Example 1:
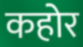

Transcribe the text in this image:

कहोर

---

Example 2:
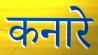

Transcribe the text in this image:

कनारे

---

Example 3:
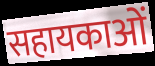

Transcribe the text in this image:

सहायकाओं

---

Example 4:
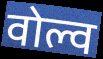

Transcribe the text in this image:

वोल्व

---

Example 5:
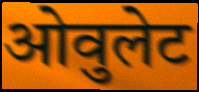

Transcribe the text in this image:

ओवुलेट